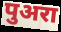
पुअरा